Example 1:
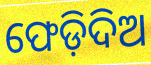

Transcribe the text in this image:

ଫେଡ଼ିଦିଅ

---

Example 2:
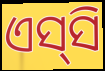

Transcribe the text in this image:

ଏସ୍‍ସି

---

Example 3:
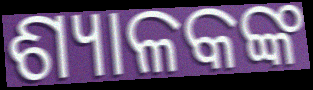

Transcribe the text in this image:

ଶ୍ୟାଳକଙ୍କ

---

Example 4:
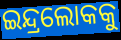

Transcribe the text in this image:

ଇନ୍ଦ୍ରଲୋକକୁ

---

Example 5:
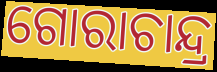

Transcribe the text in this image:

ଗୋରାଚାନ୍ଦ୍ର